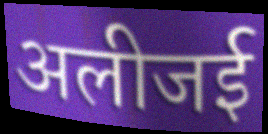
अलीजई